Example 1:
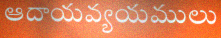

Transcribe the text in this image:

ఆదాయవ్యయములు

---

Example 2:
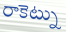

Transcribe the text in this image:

రాకెట్ను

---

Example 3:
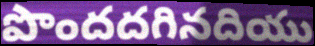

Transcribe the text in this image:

పొందదగినదియు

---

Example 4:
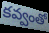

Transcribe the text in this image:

కవ్వంతో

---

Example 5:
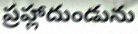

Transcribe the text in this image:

ప్రహ్లాదుండును